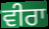
ਵੀਰਾ